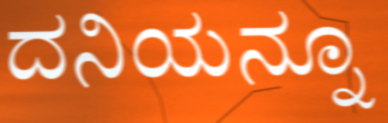
ದನಿಯನ್ನೂ